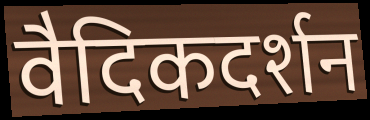
वैदिकदर्शन